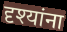
दृश्यांना